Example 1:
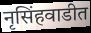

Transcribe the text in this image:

नृसिंहवाडीत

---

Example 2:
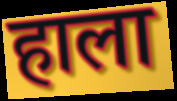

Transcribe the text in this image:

हाला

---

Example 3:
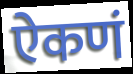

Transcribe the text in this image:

ऐकणं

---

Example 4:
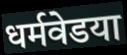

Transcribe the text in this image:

धर्मवेडया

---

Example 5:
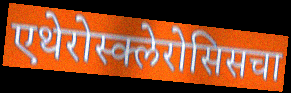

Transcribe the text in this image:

एथेरोस्क्लेरोसिसचा